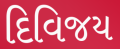
દિવિજય